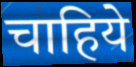
चाहिये